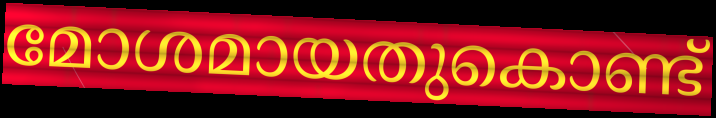
മോശമായതുകൊണ്ട്